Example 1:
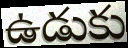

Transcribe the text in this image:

ఉడుకు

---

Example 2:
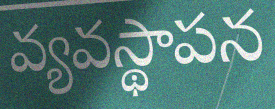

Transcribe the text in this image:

వ్యవస్థాపన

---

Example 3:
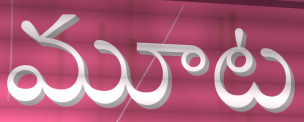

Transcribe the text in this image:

మూట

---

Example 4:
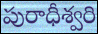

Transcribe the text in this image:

పురాధీశ్వరి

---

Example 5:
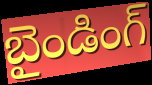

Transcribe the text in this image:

బైండింగ్